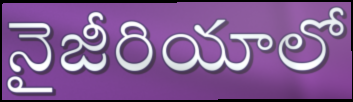
నైజీరియాలో